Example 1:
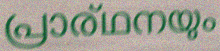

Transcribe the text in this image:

പ്രാര്ഥനയും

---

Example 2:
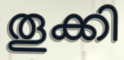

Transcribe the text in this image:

തൂക്കി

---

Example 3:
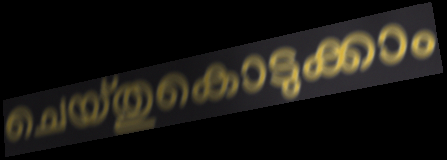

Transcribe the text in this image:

ചെയ്തുകൊടുക്കാം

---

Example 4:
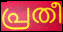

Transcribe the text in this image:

പ്രതീ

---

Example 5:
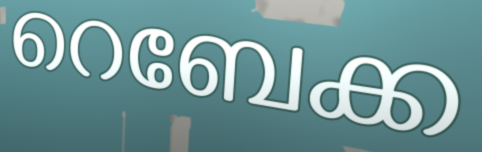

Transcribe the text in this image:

റെബേക്ക